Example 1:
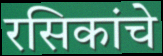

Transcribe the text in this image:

रसिकांचे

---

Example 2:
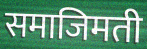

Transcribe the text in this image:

समाजिमती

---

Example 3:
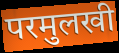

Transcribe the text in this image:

परमुलखी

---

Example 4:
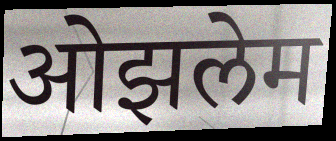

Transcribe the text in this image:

ओझलेम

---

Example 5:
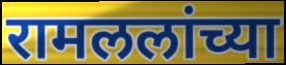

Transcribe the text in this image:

रामललांच्या